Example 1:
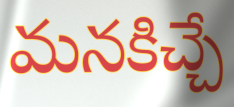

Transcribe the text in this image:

మనకిచ్చే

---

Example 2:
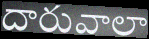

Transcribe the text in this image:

దారువాలా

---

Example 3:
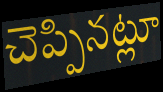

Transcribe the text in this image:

చెప్పినట్లూ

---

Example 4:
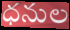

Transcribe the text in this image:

ధనుల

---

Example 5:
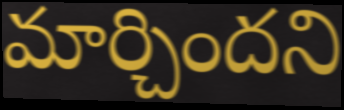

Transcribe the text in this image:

మార్చిందని